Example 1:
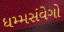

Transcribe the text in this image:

ધમ્મસંવેગો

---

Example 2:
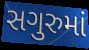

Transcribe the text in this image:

સગુરુમાં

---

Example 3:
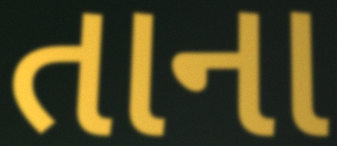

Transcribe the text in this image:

તાના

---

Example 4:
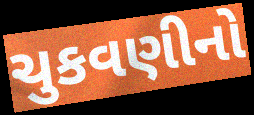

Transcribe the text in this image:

ચુકવણીનો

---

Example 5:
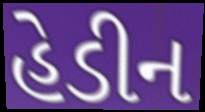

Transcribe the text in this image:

હેડીન